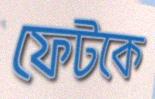
ফেটকে